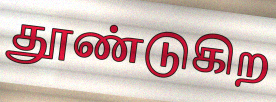
தூண்டுகிற